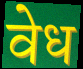
वेध